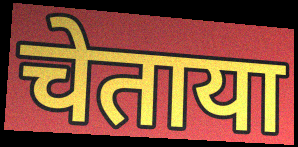
चेताया